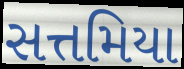
સત્તમિયા